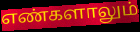
எண்களாலும்